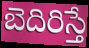
బెదిరిస్తే